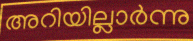
അറിയില്ലാർന്നു